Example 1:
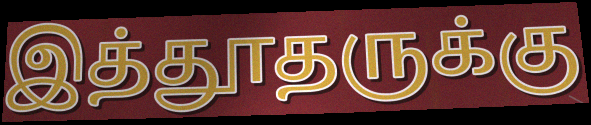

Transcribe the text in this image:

இத்தூதருக்கு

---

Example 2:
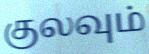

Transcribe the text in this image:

குலவும்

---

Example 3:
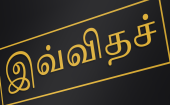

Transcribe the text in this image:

இவ்விதச்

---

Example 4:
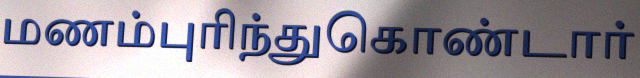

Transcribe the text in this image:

மணம்புரிந்துகொண்டார்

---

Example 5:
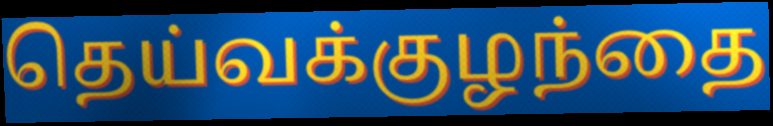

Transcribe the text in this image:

தெய்வக்குழந்தை